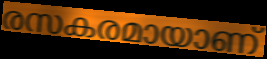
രസകരമായാണ്